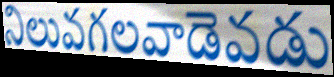
నిలువగలవాడెవడు